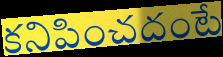
కనిపించదంటే